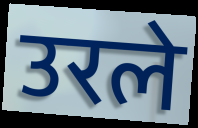
उरले